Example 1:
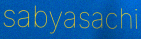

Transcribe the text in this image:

sabyasachi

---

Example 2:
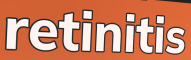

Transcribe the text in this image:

retinitis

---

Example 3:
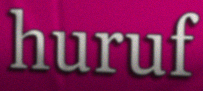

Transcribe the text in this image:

huruf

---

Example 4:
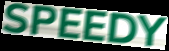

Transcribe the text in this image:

SPEEDY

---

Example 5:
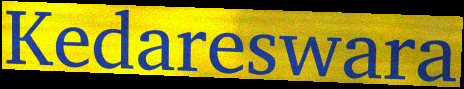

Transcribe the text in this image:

Kedareswara